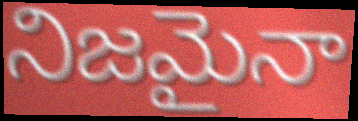
నిజమైనా